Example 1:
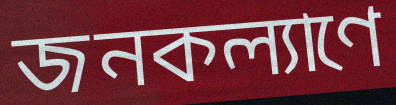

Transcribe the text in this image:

জনকল্যাণে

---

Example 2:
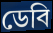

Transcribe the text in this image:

ডেবি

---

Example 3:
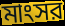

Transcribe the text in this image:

মাংসর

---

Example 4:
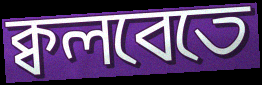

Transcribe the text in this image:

ক্বলবেতে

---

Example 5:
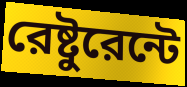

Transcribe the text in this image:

রেষ্টুরেন্টে